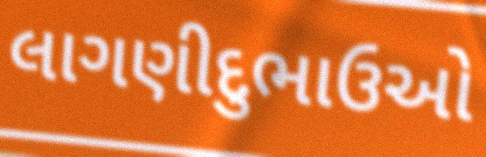
લાગણીદુભાઉઓ